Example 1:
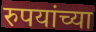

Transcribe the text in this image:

रुपयांच्या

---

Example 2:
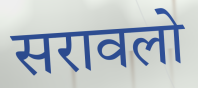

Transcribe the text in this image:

सरावलो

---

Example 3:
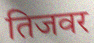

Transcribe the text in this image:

तिजवर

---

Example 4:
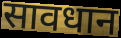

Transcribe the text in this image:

सावधान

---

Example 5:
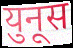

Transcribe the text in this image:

युनूस